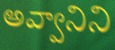
అవ్వానిని